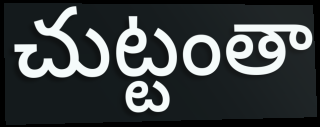
చుట్టంతా